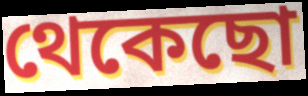
থেকেছো